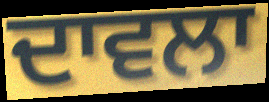
ਦਾਵਲਾ